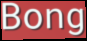
Bong